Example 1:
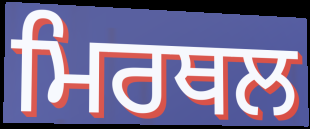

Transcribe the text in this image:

ਮਿਰਥਲ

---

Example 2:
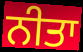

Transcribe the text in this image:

ਨੀਤਾ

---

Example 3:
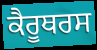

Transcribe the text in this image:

ਕੈਰੂਥਰਸ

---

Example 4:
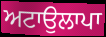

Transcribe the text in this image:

ਅਟਾਉਲਾਪਾ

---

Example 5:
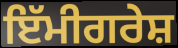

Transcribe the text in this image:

ਇੱਮੀਗਰੇਸ਼